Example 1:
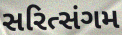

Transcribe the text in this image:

સરિત્સંગમ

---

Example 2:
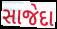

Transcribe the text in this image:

સાજેદા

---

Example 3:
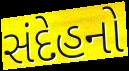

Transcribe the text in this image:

સંદેહનો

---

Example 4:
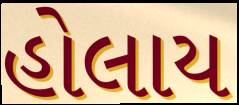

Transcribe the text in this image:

હોલાય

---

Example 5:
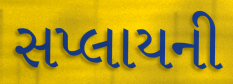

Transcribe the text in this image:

સપ્લાયની